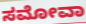
ಸಮೋವಾ